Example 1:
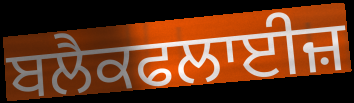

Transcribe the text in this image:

ਬਲੈਕਫਲਾਈਜ਼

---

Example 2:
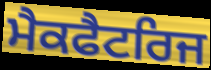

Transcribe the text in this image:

ਮੈਕਫੈਟਰਿਜ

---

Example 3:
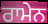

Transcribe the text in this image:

ਰਾਮੇਨ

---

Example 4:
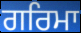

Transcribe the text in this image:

ਗਰਿਮਾ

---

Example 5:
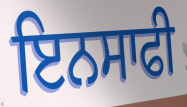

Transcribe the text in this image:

ਇਨਸਾਫੀ